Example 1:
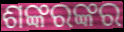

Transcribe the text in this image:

ଶଙ୍କରଙ୍କର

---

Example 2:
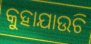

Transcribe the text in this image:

କୁହାଯାଉଚି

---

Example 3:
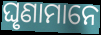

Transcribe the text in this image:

ଘୃଣାମାନେ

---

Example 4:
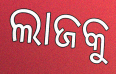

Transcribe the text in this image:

ଲାଜକୁ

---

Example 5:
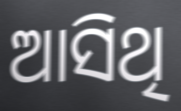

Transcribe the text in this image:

ଆସିଥି